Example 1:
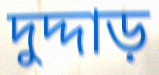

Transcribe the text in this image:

দুদ্দাড়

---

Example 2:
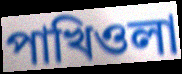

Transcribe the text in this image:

পাখিওলা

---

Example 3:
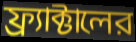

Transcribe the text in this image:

ফ্র্যাক্টালের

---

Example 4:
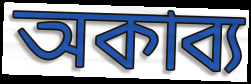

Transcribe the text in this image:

অকাব্য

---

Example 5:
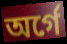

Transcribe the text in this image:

অর্গে